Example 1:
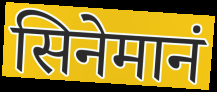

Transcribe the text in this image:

सिनेमानं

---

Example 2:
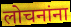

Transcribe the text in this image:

लोचनांना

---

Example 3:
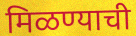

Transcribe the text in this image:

मिळण्याची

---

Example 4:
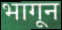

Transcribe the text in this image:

भागून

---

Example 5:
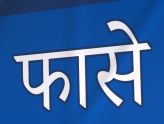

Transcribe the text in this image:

फासे